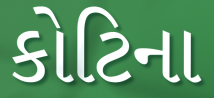
કોટિના